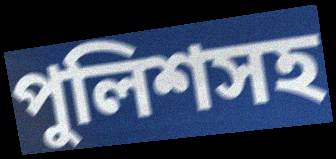
পুলিশসহ